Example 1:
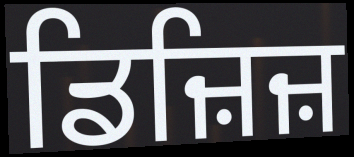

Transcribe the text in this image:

ਡਿਜ਼ਿਜ਼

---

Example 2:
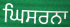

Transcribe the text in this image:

ਘਿਸਰਨਾ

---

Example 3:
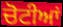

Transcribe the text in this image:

ਚੋਟੀਆਂ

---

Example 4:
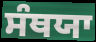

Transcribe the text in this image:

ਸੰਥਯਾ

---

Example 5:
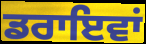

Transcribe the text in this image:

ਡਰਾਇਵਾਂ